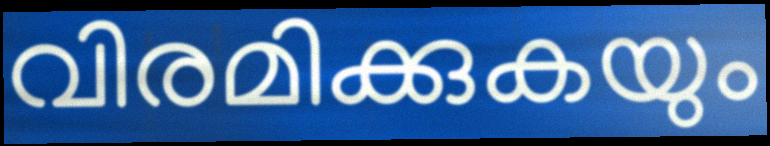
വിരമിക്കുകയും